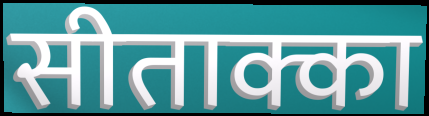
सीताक्का